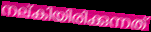
നല്‌കിയിരിക്കുന്നത്